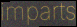
imparts